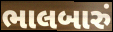
ભાલબારું